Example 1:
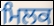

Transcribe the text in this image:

ਮਿਲਕ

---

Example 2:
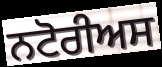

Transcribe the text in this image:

ਨਟੋਰੀਅਸ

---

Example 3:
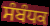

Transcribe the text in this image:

ਸੰਬੰਧਕ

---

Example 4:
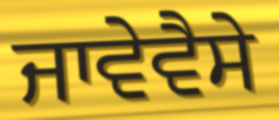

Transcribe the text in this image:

ਜਾਵੇਵੈਸੇ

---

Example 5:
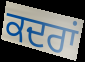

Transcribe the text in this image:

ਕਦਰਾਂ